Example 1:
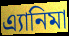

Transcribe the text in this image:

এ্যানিমা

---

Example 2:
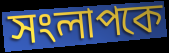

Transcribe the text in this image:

সংলাপকে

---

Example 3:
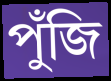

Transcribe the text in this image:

পুঁজি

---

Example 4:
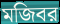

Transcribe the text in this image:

মজিবর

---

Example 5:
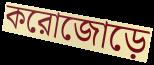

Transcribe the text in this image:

করোজোড়ে